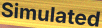
Simulated